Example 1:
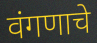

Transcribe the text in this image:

वंगणाचे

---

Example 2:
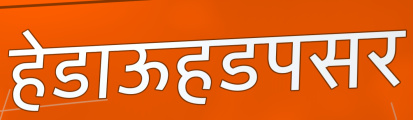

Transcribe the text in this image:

हेडाऊहडपसर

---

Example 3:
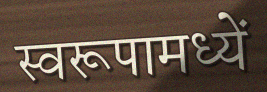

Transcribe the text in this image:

स्वरूपामध्यें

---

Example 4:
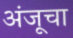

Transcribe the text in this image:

अंजूचा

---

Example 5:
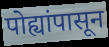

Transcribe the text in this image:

पोह्यांपासून